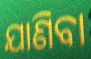
ଯାଣିବା